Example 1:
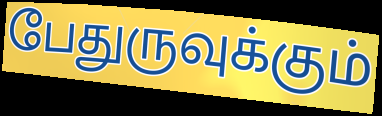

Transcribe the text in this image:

பேதுருவுக்கும்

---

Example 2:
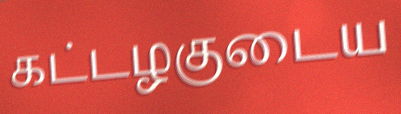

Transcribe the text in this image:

கட்டழகுடைய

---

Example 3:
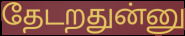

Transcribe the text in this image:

தேடறதுன்னு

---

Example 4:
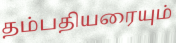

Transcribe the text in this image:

தம்பதியரையும்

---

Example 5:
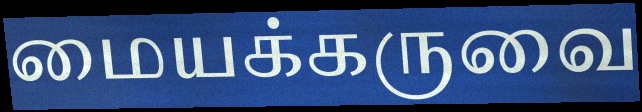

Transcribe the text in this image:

மையக்கருவை